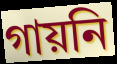
গায়নি